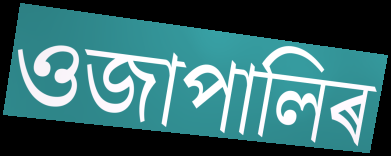
ওজাপালিৰ